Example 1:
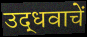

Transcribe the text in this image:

उद्धवाचें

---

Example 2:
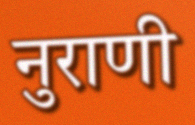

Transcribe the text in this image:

नुराणी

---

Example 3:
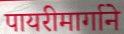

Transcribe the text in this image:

पायरीमार्गाने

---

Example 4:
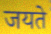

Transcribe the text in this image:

जयते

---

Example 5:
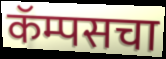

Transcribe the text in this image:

कॅम्पसचा